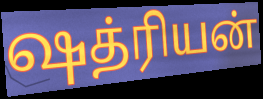
ஷத்ரியன்